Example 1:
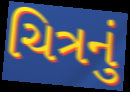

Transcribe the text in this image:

ચિત્રનું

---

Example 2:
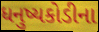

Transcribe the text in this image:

ધનુષ્યકોડીના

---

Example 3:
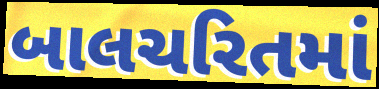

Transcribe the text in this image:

બાલચરિતમાં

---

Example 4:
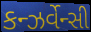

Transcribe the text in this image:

કન્ઝર્વેન્સી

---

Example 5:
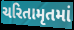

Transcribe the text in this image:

ચરિતામૃતમાં